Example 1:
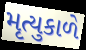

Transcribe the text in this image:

મૃત્યુકાળે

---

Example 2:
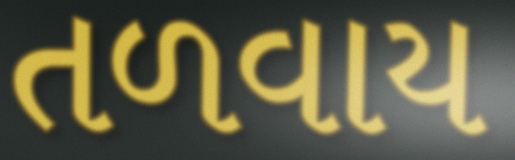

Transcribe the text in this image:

તળવાય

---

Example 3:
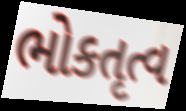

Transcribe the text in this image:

ભોકતૃત્વ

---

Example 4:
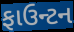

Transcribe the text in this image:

ફાઉન્ટન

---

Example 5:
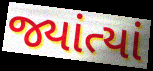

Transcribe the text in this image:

જ્યાંત્યાં